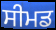
ਸੀਮਡ